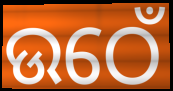
ଉଠେଁ